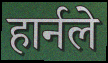
हार्नले